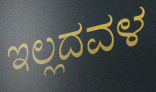
ಇಲ್ಲದವಳ